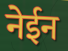
नेईन